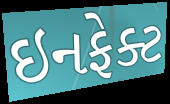
ઇનફેક્ટ